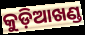
କୁଡ଼ିଆଖଣ୍ଡ